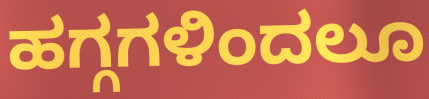
ಹಗ್ಗಗಳಿಂದಲೂ